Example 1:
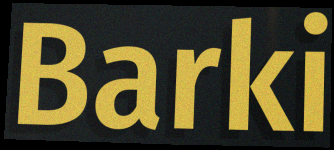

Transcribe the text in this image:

Barki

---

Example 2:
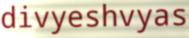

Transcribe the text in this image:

divyeshvyas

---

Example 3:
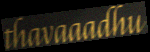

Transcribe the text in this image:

thavaaadhu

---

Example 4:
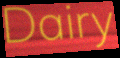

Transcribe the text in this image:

Dairy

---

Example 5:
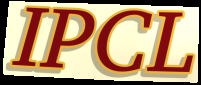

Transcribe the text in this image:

IPCL